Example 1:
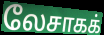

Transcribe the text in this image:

லேசாகக்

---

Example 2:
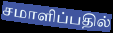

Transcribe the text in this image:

சமாளிப்பதில்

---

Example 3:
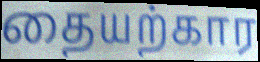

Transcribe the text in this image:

தையற்கார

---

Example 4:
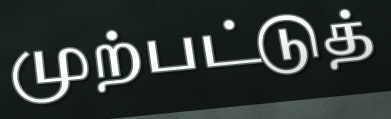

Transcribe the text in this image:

முற்பட்டுத்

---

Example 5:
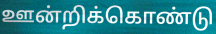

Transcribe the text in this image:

ஊன்றிக்கொண்டு